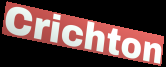
Crichton